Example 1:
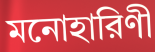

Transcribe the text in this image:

মনোহারিণী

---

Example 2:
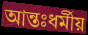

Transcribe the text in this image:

আন্তঃধর্মীয়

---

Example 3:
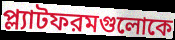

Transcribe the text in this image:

প্ল্যাটফরমগুলোকে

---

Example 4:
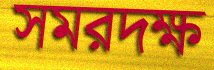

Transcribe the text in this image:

সমরদক্ষ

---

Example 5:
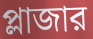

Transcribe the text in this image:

প্লাজার